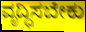
ವೃದ್ಧಿಸಬೇಕು